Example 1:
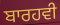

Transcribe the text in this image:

ਬਾਰਹਵੀ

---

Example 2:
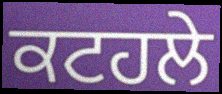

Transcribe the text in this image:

ਕਟਹਲੇ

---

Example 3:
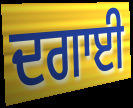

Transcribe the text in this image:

ਦਗਾਈ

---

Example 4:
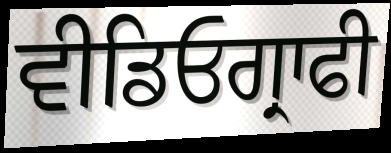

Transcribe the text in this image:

ਵੀਡਿਓਗ੍ਰਾਫੀ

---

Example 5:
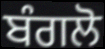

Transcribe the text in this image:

ਬੰਗਲੋ